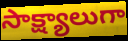
సాక్ష్యాలుగా